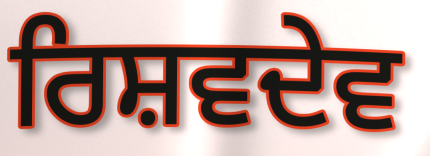
ਰਿਸ਼ਵਦੇਵ